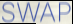
SWAP